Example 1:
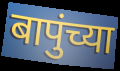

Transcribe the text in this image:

बापुंच्या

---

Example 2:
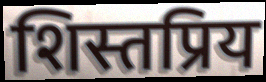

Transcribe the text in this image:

शिस्तप्रिय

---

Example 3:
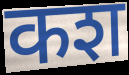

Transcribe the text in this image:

कश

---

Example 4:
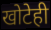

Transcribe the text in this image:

खोटेही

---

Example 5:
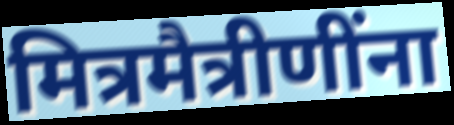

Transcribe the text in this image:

मित्रमैत्रीणींना